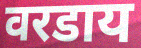
वरडाय